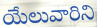
యేలువారిని